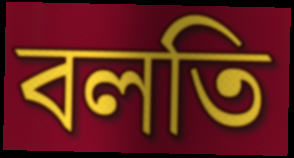
বলতি